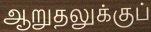
ஆறுதலுக்குப்